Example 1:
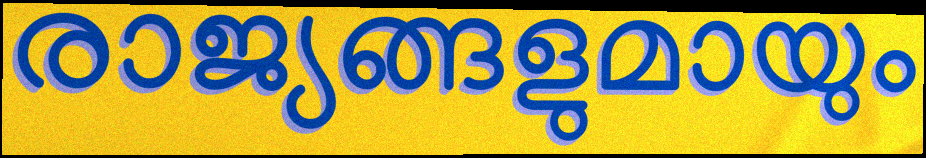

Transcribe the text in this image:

രാജ്യങ്ങളുമായും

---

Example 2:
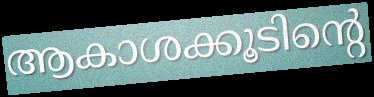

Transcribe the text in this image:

ആകാശക്കൂടിന്റെ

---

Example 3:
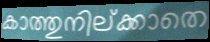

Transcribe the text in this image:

കാത്തുനില്ക്കാതെ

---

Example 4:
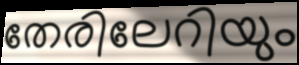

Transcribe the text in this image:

തേരിലേറിയും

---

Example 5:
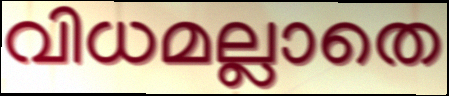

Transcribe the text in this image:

വിധമല്ലാതെ